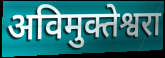
अविमुक्तेश्वरा